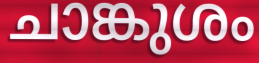
ചാങ്കുശം